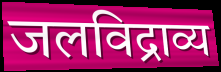
जलविद्राव्य